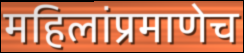
महिलांप्रमाणेच